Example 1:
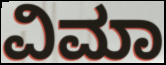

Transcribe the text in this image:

ವಿಮಾ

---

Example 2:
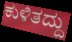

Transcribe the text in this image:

ಕುಳಿತದ್ದು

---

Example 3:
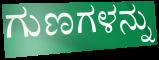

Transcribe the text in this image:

ಗುಣಗಳನ್ನು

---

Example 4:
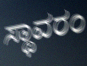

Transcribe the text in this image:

ಸ್ಥಾವರಂ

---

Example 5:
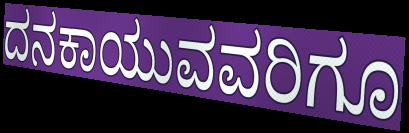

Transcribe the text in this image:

ದನಕಾಯುವವರಿಗೂ